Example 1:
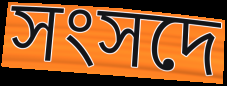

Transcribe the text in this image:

সংসদে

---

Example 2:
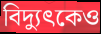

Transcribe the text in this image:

বিদ্যুৎকেও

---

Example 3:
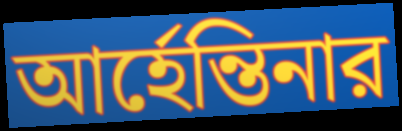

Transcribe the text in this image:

আর্হেন্তিনার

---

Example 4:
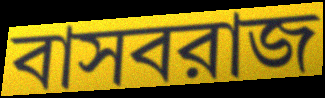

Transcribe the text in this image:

বাসবরাজ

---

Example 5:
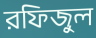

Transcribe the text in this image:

রফিজুল